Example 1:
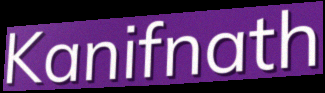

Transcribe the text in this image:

Kanifnath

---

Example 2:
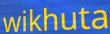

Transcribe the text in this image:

wikhuta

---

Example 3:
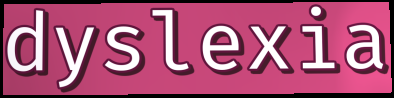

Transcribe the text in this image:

dyslexia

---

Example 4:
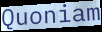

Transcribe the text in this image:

Quoniam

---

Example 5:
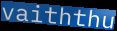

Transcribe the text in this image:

vaiththu